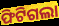
ଫିଟିଗଲା